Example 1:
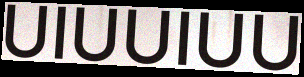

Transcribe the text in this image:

UIUUIUU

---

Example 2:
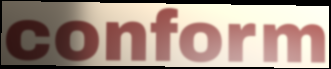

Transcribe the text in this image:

conform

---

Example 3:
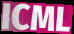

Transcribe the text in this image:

ICML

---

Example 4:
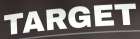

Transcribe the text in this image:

TARGET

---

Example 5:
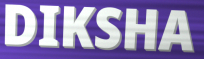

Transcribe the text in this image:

DIKSHA